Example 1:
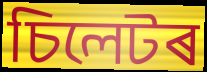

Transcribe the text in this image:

চিলেটৰ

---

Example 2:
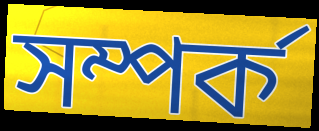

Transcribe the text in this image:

সম্পৰ্ক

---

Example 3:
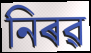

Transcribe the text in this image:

নিৰৱ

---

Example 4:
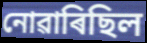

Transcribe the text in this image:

নোৱাৰিছিল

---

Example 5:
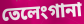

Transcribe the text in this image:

তেলেংগানা